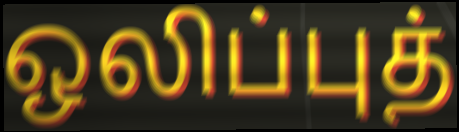
ஒலிப்புத்